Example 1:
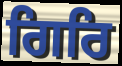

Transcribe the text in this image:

ਗਿਰਿ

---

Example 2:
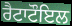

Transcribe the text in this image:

ਰੈਟਾਟੌਇਲ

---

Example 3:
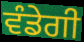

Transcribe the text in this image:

ਵੰਡੇਗੀ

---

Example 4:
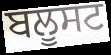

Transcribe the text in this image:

ਬਲੂਸਟ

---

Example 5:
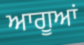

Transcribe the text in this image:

ਆਗੂਆਂ